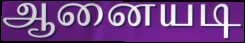
ஆனையடி